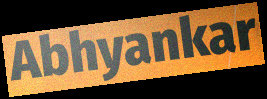
Abhyankar